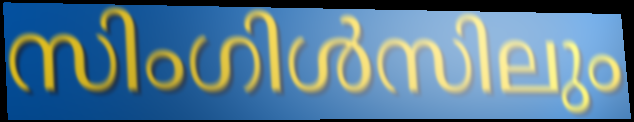
സിംഗിൾസിലും